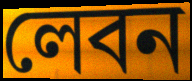
লেবন